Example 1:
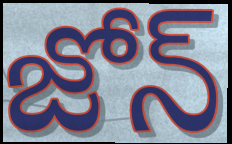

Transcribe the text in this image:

జోన్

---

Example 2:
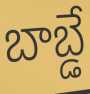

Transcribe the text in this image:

బాబ్డే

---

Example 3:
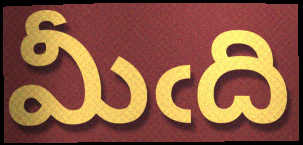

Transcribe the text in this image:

మీఁది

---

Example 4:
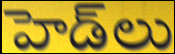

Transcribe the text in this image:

హెడ్‌లు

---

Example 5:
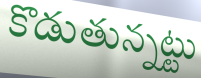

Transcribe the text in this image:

కొడుతున్నట్టు